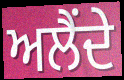
ਅਲੈਂਦੇ